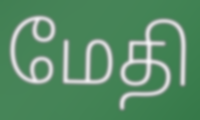
மேதி